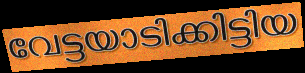
വേട്ടയാടിക്കിട്ടിയ